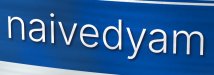
naivedyam